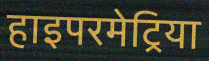
हाइपरमेट्रिया